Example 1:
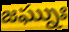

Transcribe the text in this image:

జఘ్నుః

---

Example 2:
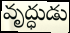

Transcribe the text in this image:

వృద్ధుడు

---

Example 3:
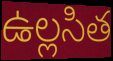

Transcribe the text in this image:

ఉల్లసిత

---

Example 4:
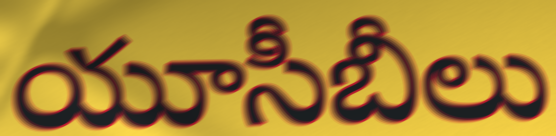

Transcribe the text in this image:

యూసీబీలు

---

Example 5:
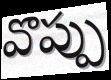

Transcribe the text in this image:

వొప్పు